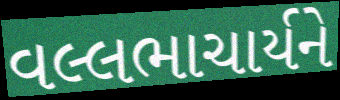
વલ્લભાચાર્યને